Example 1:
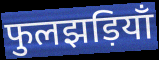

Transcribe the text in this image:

फुलझड़ियाँ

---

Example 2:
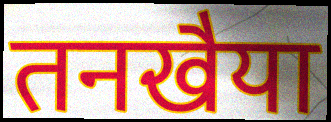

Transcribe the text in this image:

तनखैया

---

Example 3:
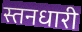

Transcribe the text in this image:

स्तनधारी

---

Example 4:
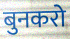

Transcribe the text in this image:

बुनकरो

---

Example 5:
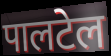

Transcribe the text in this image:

पालटेल